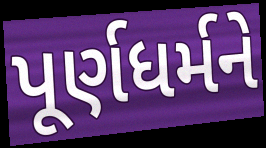
પૂર્ણધર્મને